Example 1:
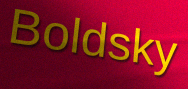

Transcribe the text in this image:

Boldsky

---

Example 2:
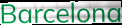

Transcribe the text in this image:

Barcelona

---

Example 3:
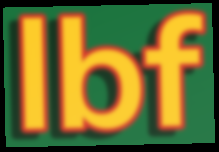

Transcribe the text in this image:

lbf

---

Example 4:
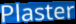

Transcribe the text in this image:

Plaster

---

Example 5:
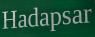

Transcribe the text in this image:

Hadapsar